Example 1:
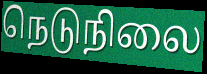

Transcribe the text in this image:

நெடுநிலை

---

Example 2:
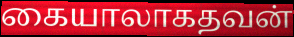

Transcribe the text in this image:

கையாலாகதவன்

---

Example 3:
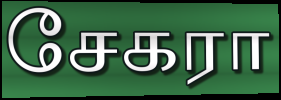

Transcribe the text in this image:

சேகரா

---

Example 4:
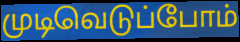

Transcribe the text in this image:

முடிவெடுப்போம்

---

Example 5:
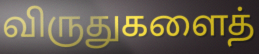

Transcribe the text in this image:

விருதுகளைத்